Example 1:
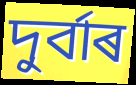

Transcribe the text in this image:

দুৰ্বাৰ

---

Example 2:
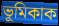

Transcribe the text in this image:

ভূমিকাক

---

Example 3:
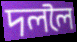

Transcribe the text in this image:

দললৈ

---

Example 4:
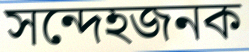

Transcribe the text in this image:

সন্দেহজনক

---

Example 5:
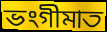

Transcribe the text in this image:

ভংগীমাত